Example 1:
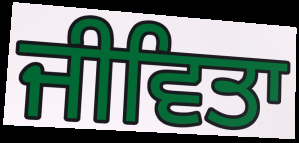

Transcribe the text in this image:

ਜੀਵਿਤਾ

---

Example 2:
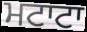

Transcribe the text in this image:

ਮਟਾਟਾ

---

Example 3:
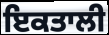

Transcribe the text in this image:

ਇਕਤਾਲੀ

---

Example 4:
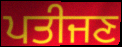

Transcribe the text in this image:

ਪਤੀਜਣ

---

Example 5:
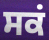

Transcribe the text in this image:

ਸਕਂ